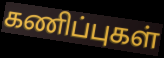
கணிப்புகள்